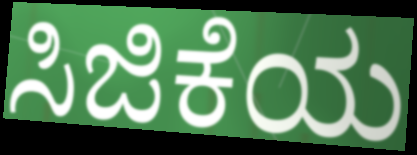
ಸಿಜಿಕೆಯ